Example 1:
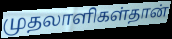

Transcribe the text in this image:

முதலாளிகள்தான்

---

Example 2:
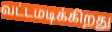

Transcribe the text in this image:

வட்டமடிக்கிறது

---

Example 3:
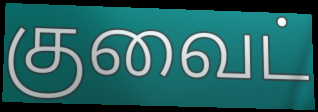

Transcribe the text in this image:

குவைட்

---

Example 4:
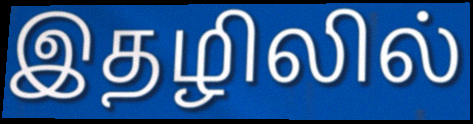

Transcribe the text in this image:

இதழிலில்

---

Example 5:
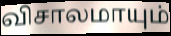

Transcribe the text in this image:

விசாலமாயும்